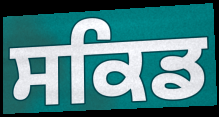
ਸਕਿਡ